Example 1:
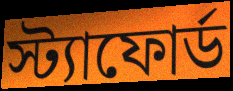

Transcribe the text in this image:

স্ট্যাফোর্ড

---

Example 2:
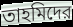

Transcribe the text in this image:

তাহমিদের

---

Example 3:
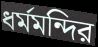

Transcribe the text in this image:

ধর্মমন্দির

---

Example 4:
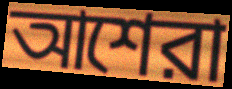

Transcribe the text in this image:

আশেরা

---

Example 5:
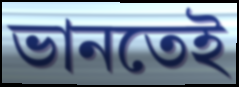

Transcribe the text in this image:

ভানতেই